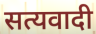
सत्यवादी